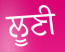
ਲੂਣੀ